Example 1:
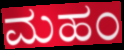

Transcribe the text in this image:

ಮಹಂ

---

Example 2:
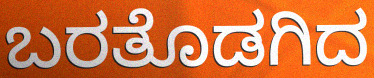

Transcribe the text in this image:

ಬರತೊಡಗಿದ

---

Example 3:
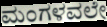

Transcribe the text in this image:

ಮಂಗಳವಲೇ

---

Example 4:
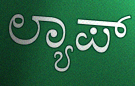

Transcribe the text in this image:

ಲ್ಯಾಪ್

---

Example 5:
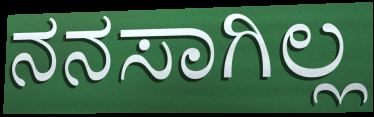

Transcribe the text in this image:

ನನಸಾಗಿಲ್ಲ